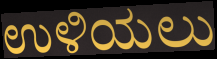
ಉಳಿಯಲು